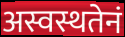
अस्वस्थतेनं